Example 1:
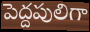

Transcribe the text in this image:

పెద్దపులిగా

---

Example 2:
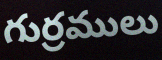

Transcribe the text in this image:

గుర్రములు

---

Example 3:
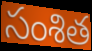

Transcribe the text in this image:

సంశిత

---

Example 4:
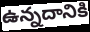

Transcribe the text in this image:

ఉన్నదానికి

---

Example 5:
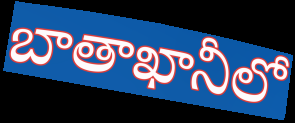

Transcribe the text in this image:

బాతాఖానీలో